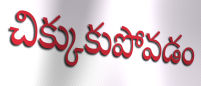
చిక్కుకుపోవడం